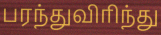
பரந்துவிரிந்து